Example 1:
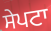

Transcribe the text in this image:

ਸੇਪਟਾ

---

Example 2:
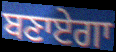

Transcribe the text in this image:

ਬਣਾਏਗਾ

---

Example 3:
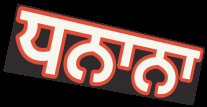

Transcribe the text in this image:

ਧਨਾਨਾ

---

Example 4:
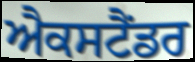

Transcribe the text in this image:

ਐਕਸਟੈਂਡਰ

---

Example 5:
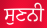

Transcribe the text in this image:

ਸੁਣਨੀ